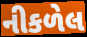
નીકળેલ